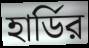
হার্ডির